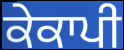
ਕੇਕਾਪੀ